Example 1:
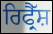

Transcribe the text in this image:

ਰਿਫ੍ਰੈੱਸ਼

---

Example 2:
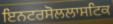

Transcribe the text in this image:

ਇਨਟਰਸੋਲਲਾਸਟਿਕ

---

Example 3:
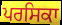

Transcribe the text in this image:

ਪਰਸਿਕਾ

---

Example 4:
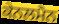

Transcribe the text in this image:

ਕੇਨਲਮੈਨ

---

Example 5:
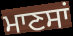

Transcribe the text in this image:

ਮਾਣਸਾਂ